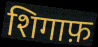
शिगाफ़